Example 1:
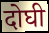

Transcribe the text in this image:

दोघी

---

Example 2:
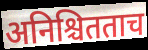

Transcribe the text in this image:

अनिश्चितताच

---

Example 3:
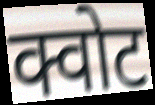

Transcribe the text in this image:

क्वोट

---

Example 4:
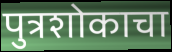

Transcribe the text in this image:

पुत्रशोकाचा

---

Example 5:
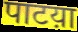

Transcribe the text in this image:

पाटय़ा